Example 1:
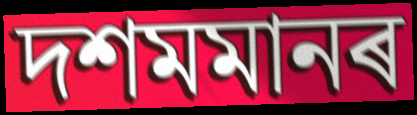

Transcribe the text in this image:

দশমমানৰ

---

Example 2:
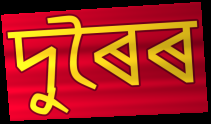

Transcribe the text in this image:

দুৰৈৰ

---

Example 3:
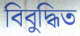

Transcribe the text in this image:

বিবুদ্ধিত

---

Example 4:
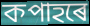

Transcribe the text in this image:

কপাহৰে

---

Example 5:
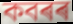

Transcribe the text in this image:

কবৰৰ